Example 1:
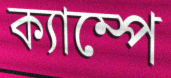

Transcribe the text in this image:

ক্যাম্পে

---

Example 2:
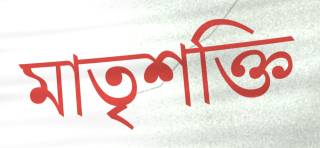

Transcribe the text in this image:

মাতৃশক্তি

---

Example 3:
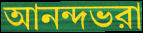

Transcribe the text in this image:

আনন্দভরা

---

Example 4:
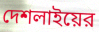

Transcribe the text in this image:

দেশলাইয়ের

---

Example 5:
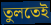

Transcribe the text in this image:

তুলতেই